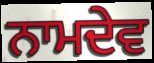
ਨਾਮਦੇਵ